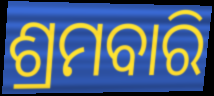
ଶ୍ରମବାରି